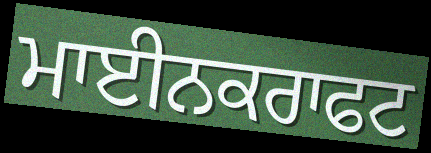
ਮਾਈਨਕਰਾਫਟ